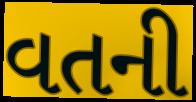
વતની